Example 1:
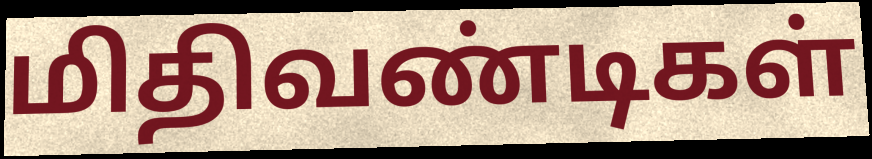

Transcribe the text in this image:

மிதிவண்டிகள்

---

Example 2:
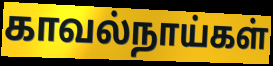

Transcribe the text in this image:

காவல்நாய்கள்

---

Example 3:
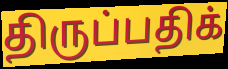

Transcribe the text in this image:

திருப்பதிக்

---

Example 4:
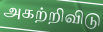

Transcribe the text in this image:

அகற்றிவிடு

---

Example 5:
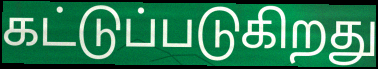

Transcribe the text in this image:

கட்டுப்படுகிறது